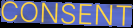
CONSENT